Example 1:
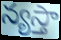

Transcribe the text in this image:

న్యస్తా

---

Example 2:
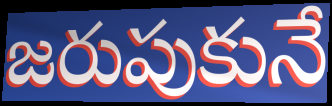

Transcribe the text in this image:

జరుపుకునే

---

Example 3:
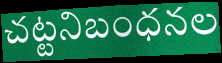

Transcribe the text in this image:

చట్టనిబంధనల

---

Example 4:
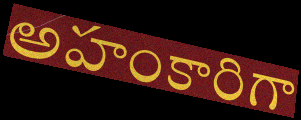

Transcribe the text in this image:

అహంకారిగా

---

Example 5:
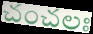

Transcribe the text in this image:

చంచలః